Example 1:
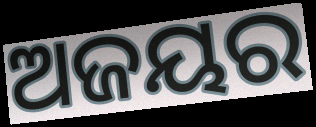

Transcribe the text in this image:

ଅଜୟର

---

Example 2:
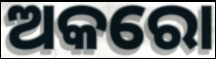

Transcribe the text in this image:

ଅକରୋ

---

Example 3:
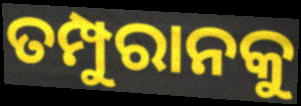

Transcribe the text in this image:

ତମ୍ପୁରାନକୁ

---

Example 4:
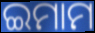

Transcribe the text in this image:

ଇମାମ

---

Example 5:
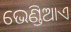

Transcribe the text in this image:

ଭେଣ୍ଡିଆଏ